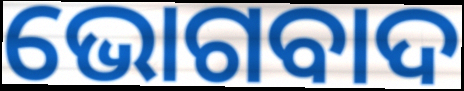
ଭୋଗବାଦ